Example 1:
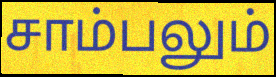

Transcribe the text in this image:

சாம்பலும்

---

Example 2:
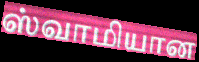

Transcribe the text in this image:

ஸ்வாமியான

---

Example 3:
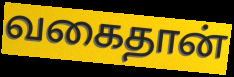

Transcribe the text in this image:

வகைதான்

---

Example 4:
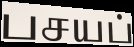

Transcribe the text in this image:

பசயப்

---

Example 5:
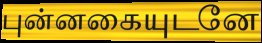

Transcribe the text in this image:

புன்னகையுடனே